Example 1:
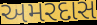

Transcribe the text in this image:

અમરદાસ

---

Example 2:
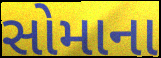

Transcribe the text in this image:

સોમાના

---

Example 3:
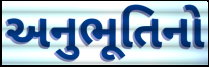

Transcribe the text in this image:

અનુભૂતિનો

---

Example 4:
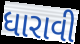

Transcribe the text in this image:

ધારાવી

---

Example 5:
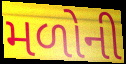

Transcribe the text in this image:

મળોની